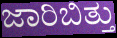
ಜಾರಿಬಿತ್ತು